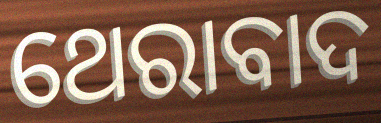
ଥେରାବାଦ